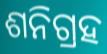
ଶନିଗ୍ରହ